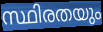
സ്ഥിരതയും